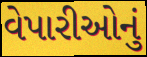
વેપારીઓનું